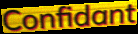
Confidant